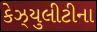
કેઝ્યુલીટીના